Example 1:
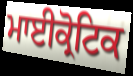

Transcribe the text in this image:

ਮਾਈਕ੍ਰੋਟਿਕ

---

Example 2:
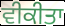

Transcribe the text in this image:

ਵੀਕੀਤਾ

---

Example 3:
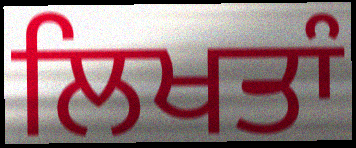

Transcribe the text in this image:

ਲਿਖਤਾੰ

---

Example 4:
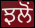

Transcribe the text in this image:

ਝਲੋਂ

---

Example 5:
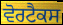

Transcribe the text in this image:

ਵੋਰਟੈਕਸ